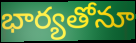
భార్యతోనూ